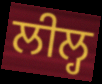
ਲੀਲ੍ਹ